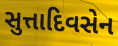
સુત્તાદિવસેન